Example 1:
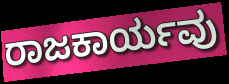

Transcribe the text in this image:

ರಾಜಕಾರ್ಯವು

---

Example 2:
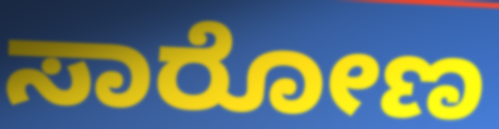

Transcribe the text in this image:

ಸಾರೋಣ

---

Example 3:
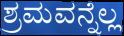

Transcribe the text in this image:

ಶ್ರಮವನ್ನೆಲ್ಲ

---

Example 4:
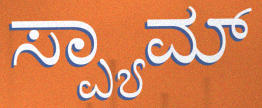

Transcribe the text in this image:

ಸ್ಪ್ಯಾಮ್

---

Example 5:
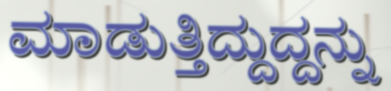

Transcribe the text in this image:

ಮಾಡುತ್ತಿದ್ದುದ್ದನ್ನು